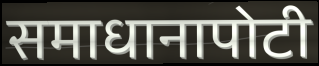
समाधानापोटी